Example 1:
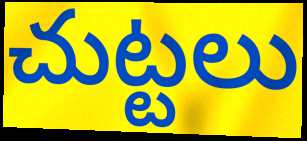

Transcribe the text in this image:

చుట్టలు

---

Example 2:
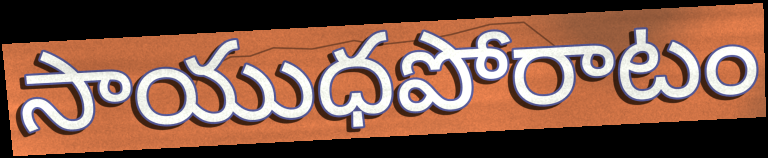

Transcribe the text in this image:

సాయుధపోరాటం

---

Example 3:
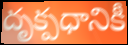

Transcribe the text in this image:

దృక్పధానికీ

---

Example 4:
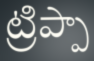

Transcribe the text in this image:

ట్రిప్పా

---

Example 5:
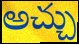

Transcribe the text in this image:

అచ్చు